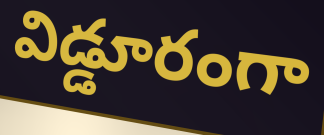
విడ్డూరంగా